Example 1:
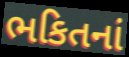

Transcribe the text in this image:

ભકિતનાં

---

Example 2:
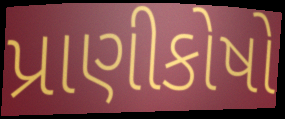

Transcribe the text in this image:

પ્રાણીકોષો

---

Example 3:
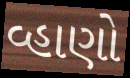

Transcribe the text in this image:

વ્હાણો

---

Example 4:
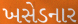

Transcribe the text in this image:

ખસેડનાર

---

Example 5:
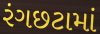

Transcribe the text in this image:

રંગછટામાં